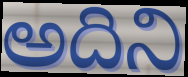
అదిని